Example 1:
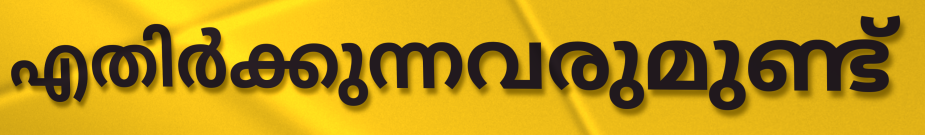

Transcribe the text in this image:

എതിർക്കുന്നവരുമുണ്ട്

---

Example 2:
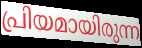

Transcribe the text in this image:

പ്രിയമായിരുന്ന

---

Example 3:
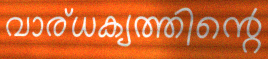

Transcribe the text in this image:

വാര്ധക്യത്തിന്റെ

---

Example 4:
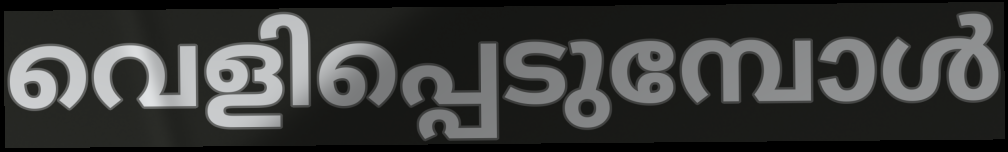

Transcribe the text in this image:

വെളിപ്പെടുമ്പോൾ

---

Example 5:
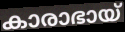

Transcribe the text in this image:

കാരാഭായ്